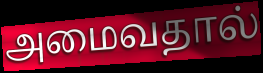
அமைவதால்